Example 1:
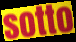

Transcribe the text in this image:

sotto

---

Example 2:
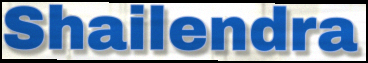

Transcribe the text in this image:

Shailendra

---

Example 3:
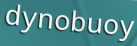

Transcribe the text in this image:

dynobuoy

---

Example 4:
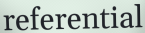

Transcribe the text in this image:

referential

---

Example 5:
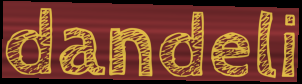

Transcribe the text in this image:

dandeli